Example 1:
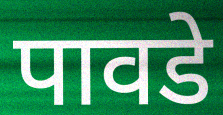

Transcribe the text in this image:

पावडे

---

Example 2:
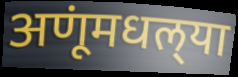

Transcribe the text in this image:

अणूंमधल्या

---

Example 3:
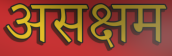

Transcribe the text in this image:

असक्षम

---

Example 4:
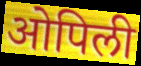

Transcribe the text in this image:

ओपिली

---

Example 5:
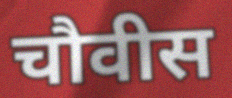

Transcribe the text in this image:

चौवीस